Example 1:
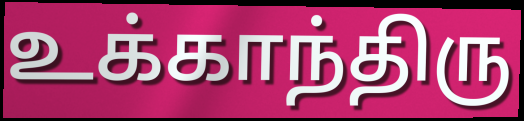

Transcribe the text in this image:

உக்காந்திரு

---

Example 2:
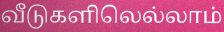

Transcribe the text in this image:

வீடுகளிலெல்லாம்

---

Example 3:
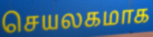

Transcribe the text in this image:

செயலகமாக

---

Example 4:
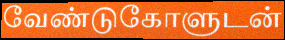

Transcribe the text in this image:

வேண்டுகோளுடன்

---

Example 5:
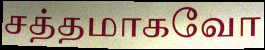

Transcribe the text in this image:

சத்தமாகவோ